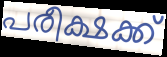
പരീക്ഷക്ക്